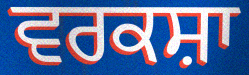
ਵਰਕਸ਼ਾ